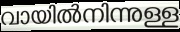
വായിൽനിന്നുള്ള